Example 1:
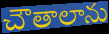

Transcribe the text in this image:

చౌతాలాను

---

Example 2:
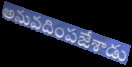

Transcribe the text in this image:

అనువదింపజేశాడు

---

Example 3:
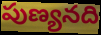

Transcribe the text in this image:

పుణ్యనది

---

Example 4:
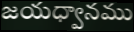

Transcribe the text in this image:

జయధ్వానము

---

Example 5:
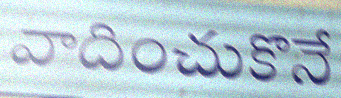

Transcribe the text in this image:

వాదించుకొనే